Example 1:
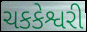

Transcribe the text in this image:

ચકકેશ્વરી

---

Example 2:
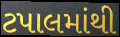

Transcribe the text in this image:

ટપાલમાંથી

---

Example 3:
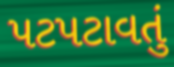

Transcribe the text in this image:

પટપટાવતું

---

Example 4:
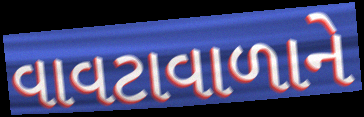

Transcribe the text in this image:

વાવટાવાળાને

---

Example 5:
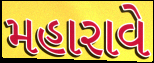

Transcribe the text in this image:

મહારાવે